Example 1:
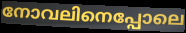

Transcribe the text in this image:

നോവലിനെപ്പോലെ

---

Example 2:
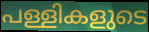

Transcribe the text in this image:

പള്ളികളുടെ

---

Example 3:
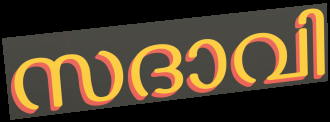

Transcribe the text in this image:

സദാവി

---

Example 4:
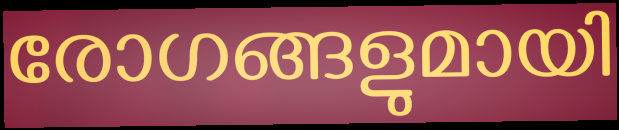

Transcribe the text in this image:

രോഗങ്ങളുമായി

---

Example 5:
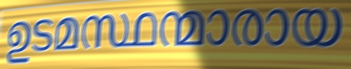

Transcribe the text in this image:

ഉടമസ്ഥന്മാരായ